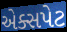
એક્સપેટ